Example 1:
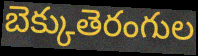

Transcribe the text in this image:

బెక్కుతెరంగుల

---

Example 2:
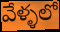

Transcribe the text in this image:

వేళ్ళలో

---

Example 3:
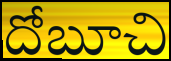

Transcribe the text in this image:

దోబూచి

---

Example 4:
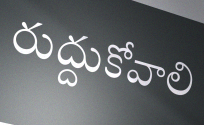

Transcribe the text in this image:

రుద్దుకోవాలి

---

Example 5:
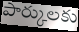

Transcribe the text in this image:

పార్కులకు